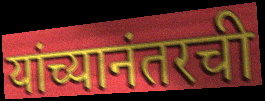
यांच्यानंतरची